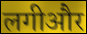
लगीऔर